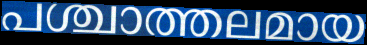
പശ്ചാത്തലമായ